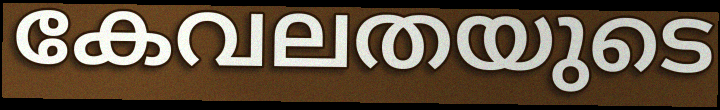
കേവലതയുടെ